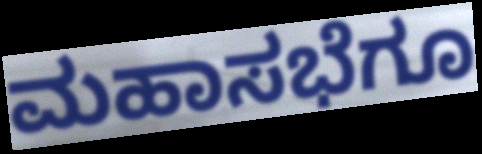
ಮಹಾಸಭೆಗೂ